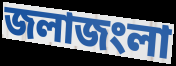
জলাজংলা